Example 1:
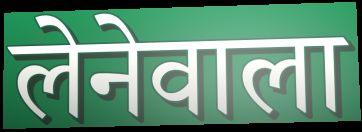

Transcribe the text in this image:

लेनेवाला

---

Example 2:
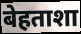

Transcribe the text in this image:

बेहताशा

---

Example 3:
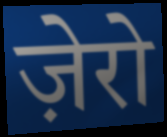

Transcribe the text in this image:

ज़ेरो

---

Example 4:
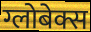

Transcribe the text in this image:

ग्लोबेक्स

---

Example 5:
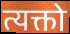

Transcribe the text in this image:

त्यक्तो